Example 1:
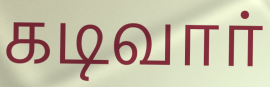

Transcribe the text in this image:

கடிவார்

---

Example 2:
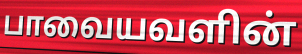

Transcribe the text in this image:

பாவையவளின்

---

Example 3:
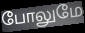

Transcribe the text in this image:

போலுமே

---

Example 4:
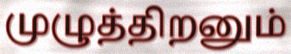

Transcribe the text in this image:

முழுத்திறனும்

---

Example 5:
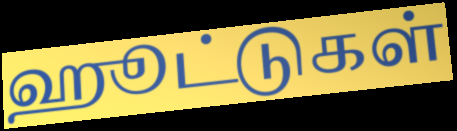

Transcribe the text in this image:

ஹூட்டுகள்